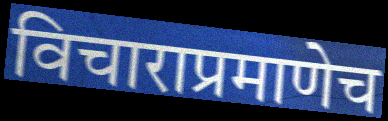
विचाराप्रमाणेच